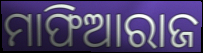
ମାଫିଆରାଜ